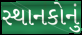
સ્થાનકોનું